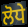
ਲੋਧੇ